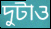
দুটাও